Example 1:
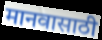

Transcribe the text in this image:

मानवासाठी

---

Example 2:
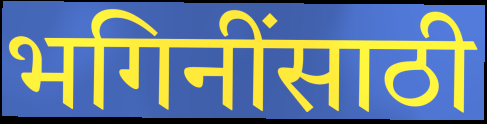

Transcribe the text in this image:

भगिनींसाठी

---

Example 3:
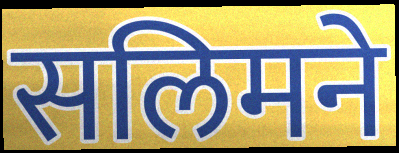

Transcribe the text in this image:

सलिमने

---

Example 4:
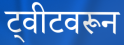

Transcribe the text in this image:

ट्वीटवरून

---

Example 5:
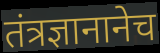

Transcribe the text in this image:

तंत्रज्ञानानेच